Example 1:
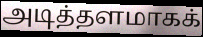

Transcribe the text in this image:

அடித்தளமாகக்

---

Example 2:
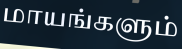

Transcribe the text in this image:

மாயங்களும்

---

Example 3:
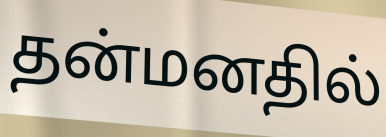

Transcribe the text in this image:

தன்மனதில்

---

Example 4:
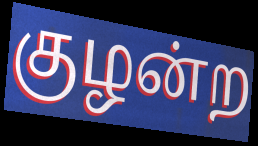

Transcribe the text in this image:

குழன்ற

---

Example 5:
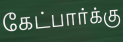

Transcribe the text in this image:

கேட்பார்க்கு